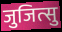
जुजित्सु